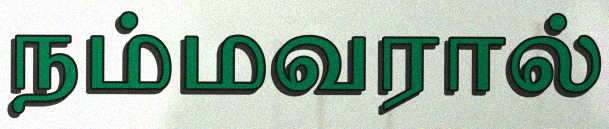
நம்மவரால்